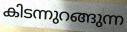
കിടന്നുറങ്ങുന്ന